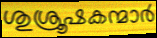
ശുശ്രൂഷകന്മാർ